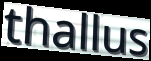
thallus